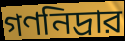
গণনিদ্রার